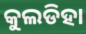
କୁଲଡିହା